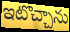
ఇటొచ్చాను